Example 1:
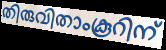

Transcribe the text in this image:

തിരുവിതാംകൂറിന്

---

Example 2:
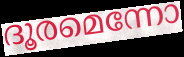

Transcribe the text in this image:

ദൂരമെന്നോ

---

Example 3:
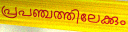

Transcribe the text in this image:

പ്രപഞ്ചത്തിലേക്കും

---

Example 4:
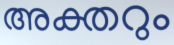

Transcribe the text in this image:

അക്തറും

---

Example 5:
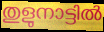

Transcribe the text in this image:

തുളുനാട്ടിൽ